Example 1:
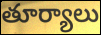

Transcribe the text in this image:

తూర్యాలు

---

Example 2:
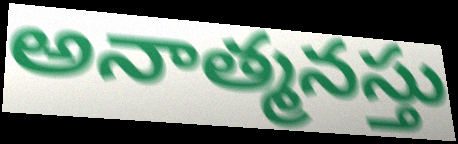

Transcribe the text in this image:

అనాత్మనస్తు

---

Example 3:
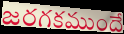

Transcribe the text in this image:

జరగకముందే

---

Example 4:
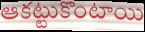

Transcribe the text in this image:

ఆకట్టుకొంటాయి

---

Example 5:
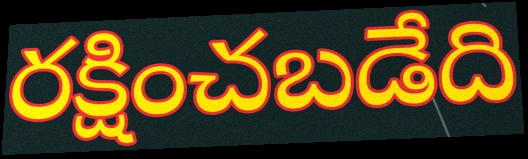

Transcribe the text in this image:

రక్షించబడేది